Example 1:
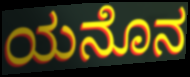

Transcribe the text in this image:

ಯನೊನ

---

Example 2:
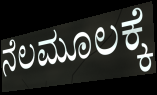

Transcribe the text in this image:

ನೆಲಮೂಲಕ್ಕೆ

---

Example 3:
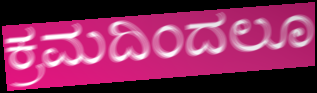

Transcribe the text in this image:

ಕ್ರಮದಿಂದಲೂ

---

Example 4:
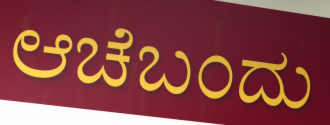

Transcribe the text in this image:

ಆಚೆಬಂದು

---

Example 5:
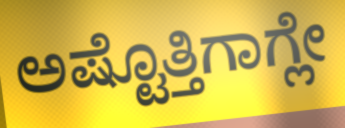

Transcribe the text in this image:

ಅಷ್ಟೊತ್ತಿಗಾಗ್ಲೇ